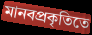
মানবপ্রকৃতিতে